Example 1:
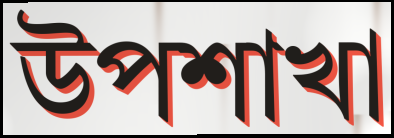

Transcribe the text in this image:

উপশাখা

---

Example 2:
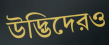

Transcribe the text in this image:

উদ্ভিদেরও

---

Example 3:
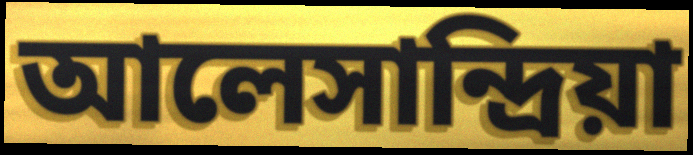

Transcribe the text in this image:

আলেসান্দ্রিয়া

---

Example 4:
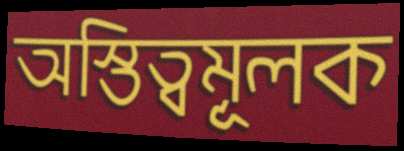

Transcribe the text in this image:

অস্তিত্বমূলক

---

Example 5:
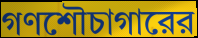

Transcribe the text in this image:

গণশৌচাগারের